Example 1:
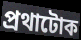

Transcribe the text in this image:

প্ৰথাটোক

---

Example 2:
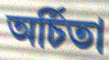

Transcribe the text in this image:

অৰ্চিতা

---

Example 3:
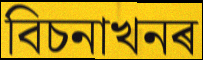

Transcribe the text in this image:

বিচনাখনৰ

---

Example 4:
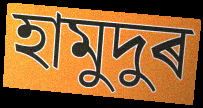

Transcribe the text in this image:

হামুদুৰ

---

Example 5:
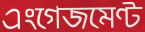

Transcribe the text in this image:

এংগেজমেণ্ট